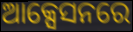
ଆକ୍ସେସନରେ